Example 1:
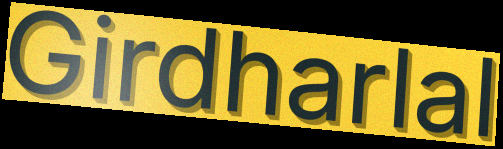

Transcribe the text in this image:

Girdharlal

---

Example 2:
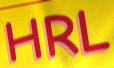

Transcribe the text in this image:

HRL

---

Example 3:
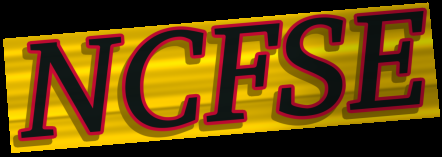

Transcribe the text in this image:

NCFSE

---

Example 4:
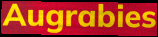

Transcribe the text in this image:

Augrabies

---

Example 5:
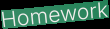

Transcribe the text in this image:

Homework